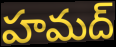
హమద్